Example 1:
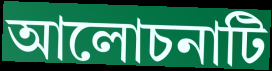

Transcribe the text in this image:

আলোচনাটি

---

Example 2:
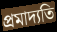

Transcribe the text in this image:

প্রমাদ্যতি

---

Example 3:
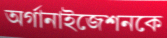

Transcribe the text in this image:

অর্গানাইজেশনকে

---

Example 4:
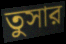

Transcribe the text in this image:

তুসার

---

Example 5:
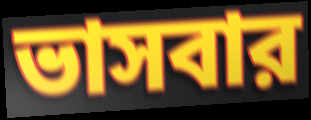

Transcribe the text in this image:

ভাসবার